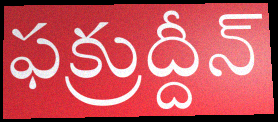
ఫక్రుద్దీన్